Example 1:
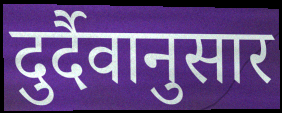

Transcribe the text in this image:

दुर्दैवानुसार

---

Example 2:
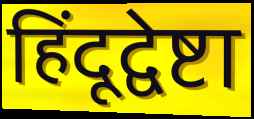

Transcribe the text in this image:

हिंदूद्वेष्टा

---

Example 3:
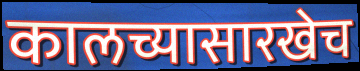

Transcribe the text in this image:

कालच्यासारखेच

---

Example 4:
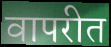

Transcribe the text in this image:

वापरीत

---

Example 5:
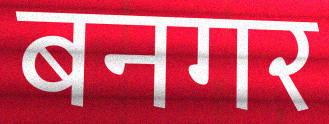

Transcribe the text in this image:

बनगर